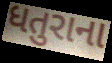
ધતુરાના